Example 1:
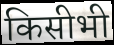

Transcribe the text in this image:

किसीभी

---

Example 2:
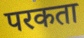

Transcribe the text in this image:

परकता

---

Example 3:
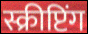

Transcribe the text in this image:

स्क्रीप्टिंग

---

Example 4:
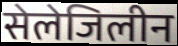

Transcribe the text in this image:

सेलेजिलीन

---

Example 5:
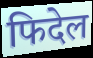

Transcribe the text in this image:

फिदेल